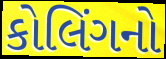
કોલિંગનો